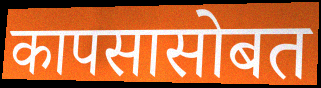
कापसासोबत